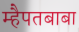
म्हैपतबाबा